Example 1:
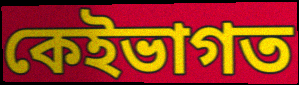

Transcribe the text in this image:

কেইভাগত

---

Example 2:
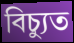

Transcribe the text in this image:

বিচ্যুত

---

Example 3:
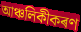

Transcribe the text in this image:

আঞ্চলিকীকৰণ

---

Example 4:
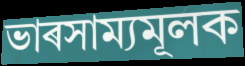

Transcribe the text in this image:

ভাৰসাম্যমূলক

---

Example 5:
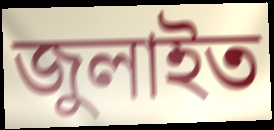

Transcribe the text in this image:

জুলাইত